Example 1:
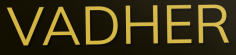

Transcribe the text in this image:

VADHER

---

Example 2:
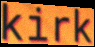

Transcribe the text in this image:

kirk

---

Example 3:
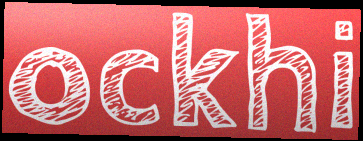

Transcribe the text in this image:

ockhi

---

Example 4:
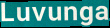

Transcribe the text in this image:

Luvunga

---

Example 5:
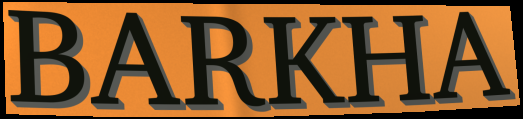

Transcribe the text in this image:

BARKHA